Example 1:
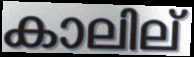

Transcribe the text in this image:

കാലില്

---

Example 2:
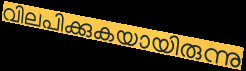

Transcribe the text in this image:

വിലപിക്കുകയായിരുന്നു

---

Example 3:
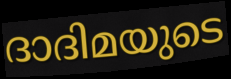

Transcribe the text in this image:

ദാദിമയുടെ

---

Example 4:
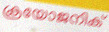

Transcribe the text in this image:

ക്രയോജനിക്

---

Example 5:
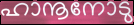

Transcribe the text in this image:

ഹാനൂനോടു